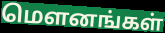
மௌனங்கள்